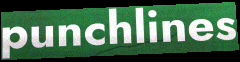
punchlines